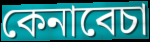
কেনাবেচা